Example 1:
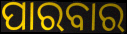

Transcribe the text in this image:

ପାରବାର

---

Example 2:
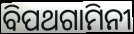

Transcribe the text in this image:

ବିପଥଗାମିନୀ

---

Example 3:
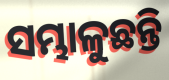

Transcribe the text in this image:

ସମ୍ଭାଳୁଛନ୍ତି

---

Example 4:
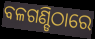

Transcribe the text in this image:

ବଳଗଣ୍ଡିଠାରେ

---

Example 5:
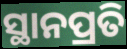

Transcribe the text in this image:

ସ୍ଥାନପ୍ରତି